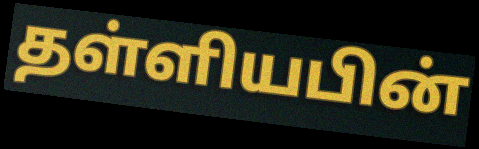
தள்ளியபின்